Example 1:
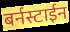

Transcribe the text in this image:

बर्नस्टाईन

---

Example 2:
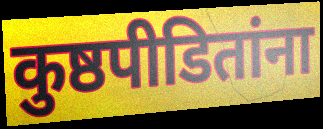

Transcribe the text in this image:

कुष्ठपीडितांना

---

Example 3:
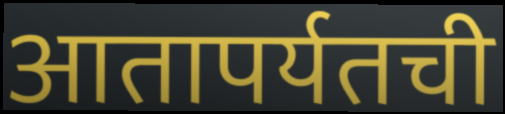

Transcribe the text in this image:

आतापर्यतची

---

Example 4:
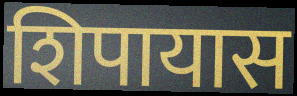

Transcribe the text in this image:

शिपायास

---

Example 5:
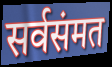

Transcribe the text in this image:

सर्वसंमत